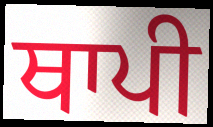
ਥਾਪੀ